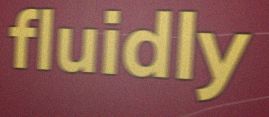
fluidly